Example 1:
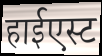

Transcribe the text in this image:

हाईएस्ट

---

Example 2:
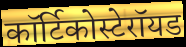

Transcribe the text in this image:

कॉर्टिकोस्टेरॉयड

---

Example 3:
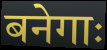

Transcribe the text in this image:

बनेगाः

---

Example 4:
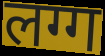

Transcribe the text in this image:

लग्ग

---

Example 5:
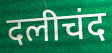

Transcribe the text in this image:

दलीचंद